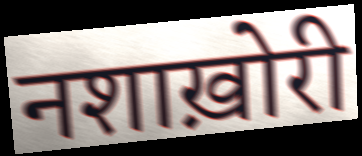
नशाख़ोरी